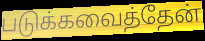
படுக்கவைத்தேன்